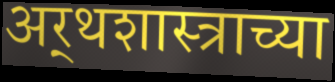
अर्थशास्त्राच्या